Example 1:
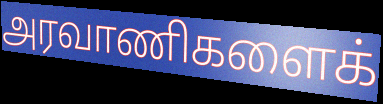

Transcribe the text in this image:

அரவாணிகளைக்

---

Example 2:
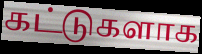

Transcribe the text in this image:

கட்டுகளாக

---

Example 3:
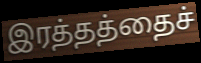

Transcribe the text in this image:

இரத்தத்தைச்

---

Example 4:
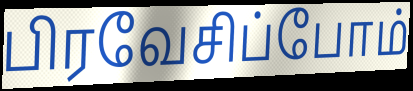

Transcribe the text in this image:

பிரவேசிப்போம்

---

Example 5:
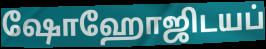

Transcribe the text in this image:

ஷோஹோஜிடயப்